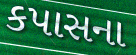
કપાસના